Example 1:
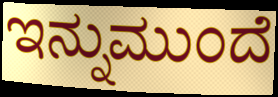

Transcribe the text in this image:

ಇನ್ನುಮುಂದೆ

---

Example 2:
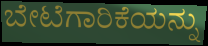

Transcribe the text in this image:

ಬೇಟೆಗಾರಿಕೆಯನ್ನು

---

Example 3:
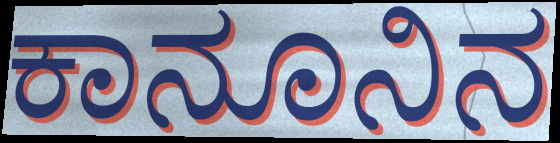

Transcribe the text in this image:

ಕಾನೂನಿನ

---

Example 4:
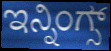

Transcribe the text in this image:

ಇನ್ನಿಂಗ್ಸ್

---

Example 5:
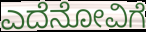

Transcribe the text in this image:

ಎದೆನೋವಿಗೆ